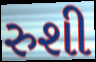
રુશી